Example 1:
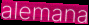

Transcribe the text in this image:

alemana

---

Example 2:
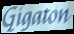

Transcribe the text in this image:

Gigaton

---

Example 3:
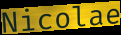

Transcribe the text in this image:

Nicolae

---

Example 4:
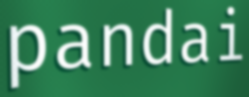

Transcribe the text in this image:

pandai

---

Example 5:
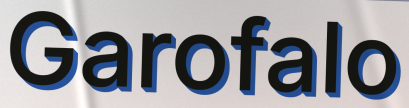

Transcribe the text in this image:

Garofalo